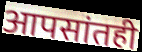
आपसांतही